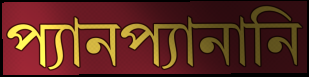
প্যানপ্যানানি